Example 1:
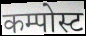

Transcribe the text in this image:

कम्पोस्ट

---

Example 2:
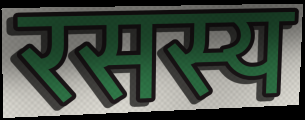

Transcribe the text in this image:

रसस्य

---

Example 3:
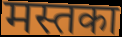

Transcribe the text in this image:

मस्तका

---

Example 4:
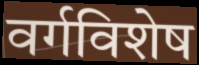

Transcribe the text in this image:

वर्गविशेष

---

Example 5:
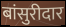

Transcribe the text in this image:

बांसुरीदार